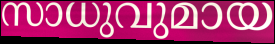
സാധുവുമായ